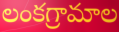
లంకగ్రామాల